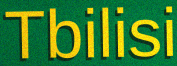
Tbilisi